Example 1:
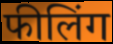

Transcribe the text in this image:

फीलिंग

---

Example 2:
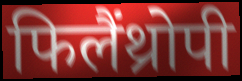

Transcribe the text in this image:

फिलैंथ्रोपी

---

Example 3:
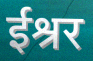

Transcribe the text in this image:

ईश्रर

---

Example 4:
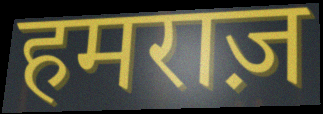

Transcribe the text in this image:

हमराज़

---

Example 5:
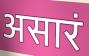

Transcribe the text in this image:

असारं